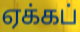
ஏக்கப்